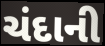
ચંદાની